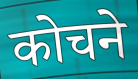
कोचने